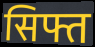
सिफ्त